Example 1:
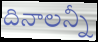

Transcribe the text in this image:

దినాలన్నీ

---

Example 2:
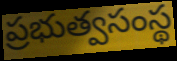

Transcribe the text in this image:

ప్రభుత్వసంస్థ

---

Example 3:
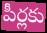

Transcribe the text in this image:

పీర్లకు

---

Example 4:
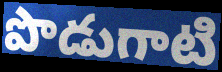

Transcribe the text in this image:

పొడుగాటి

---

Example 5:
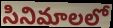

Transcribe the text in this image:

సినిమాలలో